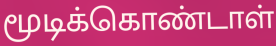
மூடிக்கொண்டாள்